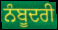
ਨੰਬੂਦਰੀ